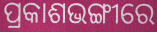
ପ୍ରକାଶଭଙ୍ଗୀରେ